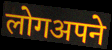
लोगअपने